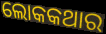
ଲୋକକଥାର